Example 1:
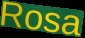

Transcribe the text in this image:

Rosa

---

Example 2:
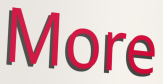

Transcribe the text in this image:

More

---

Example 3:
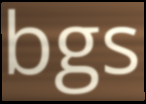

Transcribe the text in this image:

bgs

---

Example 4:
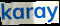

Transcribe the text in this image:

karay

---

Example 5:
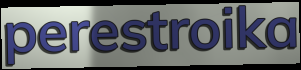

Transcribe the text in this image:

perestroika